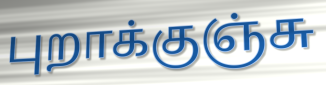
புறாக்குஞ்சு